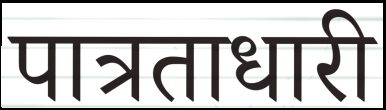
पात्रताधारी